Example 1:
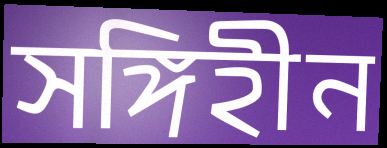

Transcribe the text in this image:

সঙ্গিহীন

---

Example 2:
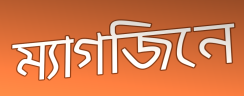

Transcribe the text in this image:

ম্যাগজিনে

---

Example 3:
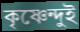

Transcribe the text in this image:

কৃষ্ণেন্দুই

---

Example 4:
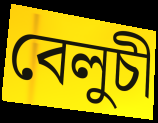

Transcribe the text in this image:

বেলুচী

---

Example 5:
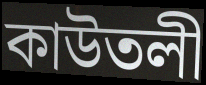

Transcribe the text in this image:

কাউতলী